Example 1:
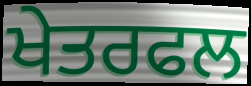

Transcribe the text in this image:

ਖੇਤਰਫਲ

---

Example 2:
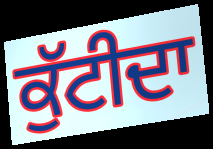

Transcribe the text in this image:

ਕੁੱਟੀਦਾ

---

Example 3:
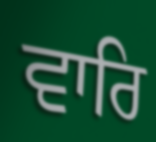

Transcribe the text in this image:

ਵਾਰਿ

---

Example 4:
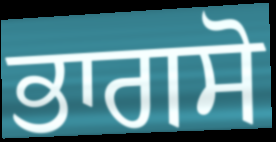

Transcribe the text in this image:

ਭਾਗਸੋ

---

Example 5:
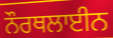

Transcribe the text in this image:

ਨੌਰਥਲਾਈਨ